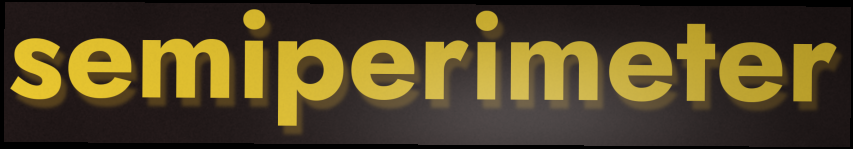
semiperimeter